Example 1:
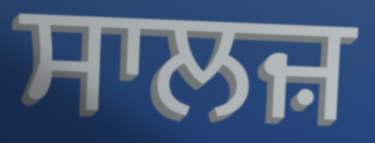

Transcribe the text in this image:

ਸਾਲਜ਼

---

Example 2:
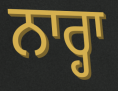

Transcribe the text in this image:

ਨਾਰ੍ਹਾ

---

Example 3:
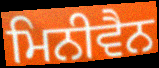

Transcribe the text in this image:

ਮਿਨੀਵੈਨ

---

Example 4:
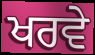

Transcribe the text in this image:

ਖਰਵੇ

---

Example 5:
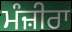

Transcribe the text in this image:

ਮੰਜ਼ੀਰਾ